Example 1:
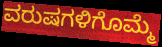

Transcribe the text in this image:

ವರುಷಗಳಿಗೊಮ್ಮೆ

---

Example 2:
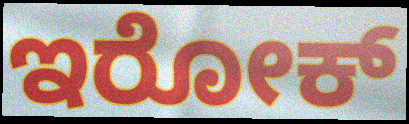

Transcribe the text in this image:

ಇರೋಕ್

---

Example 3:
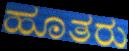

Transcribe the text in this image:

ಹೂತರು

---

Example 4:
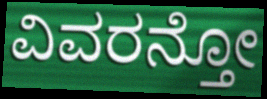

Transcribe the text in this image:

ವಿವರನ್ತೋ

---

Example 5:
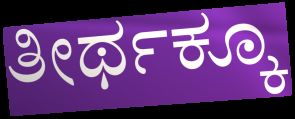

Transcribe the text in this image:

ತೀರ್ಥಕ್ಕೂ